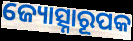
ଜ୍ୟୋତ୍ସ୍ନାରୂପକ